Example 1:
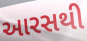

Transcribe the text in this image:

આરસથી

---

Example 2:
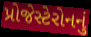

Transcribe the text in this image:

પ્રોજેસ્ટેરોનનું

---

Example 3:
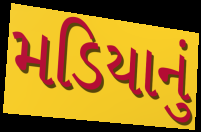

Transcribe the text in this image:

મડિયાનું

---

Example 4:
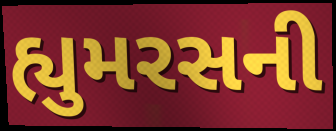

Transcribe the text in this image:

હ્યુમરસની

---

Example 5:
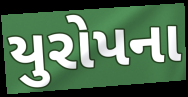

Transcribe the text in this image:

યુરોપના